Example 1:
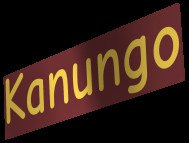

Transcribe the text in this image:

Kanungo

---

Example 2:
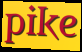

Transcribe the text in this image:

pike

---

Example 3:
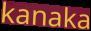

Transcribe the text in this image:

kanaka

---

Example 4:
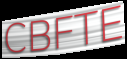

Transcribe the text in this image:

CBFTE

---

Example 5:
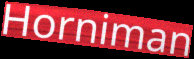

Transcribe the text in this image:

Horniman